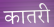
कातरी